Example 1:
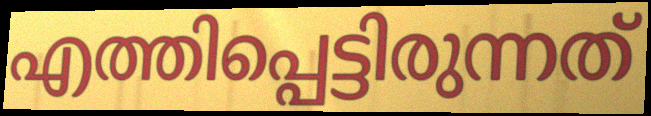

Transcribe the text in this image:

എത്തിപ്പെട്ടിരുന്നത്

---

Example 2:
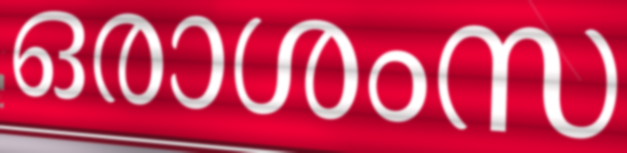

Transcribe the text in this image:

ഒരാശംസ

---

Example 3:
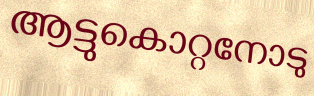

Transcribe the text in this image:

ആട്ടുകൊറ്റനോടു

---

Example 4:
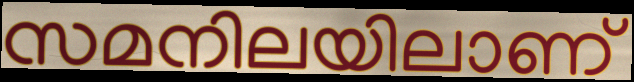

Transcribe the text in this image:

സമനിലയിലാണ്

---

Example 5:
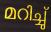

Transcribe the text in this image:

മറിച്ചു്